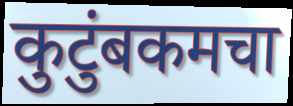
कुटुंबकमचा